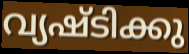
വ്യഷ്ടിക്കു